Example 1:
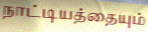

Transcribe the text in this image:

நாட்டியத்தையும்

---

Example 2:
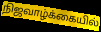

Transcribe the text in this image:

நிஜவாழ்க்கையில்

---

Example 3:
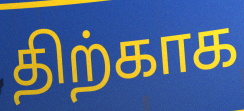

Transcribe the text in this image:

திற்காக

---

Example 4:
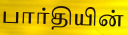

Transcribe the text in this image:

பார்தியின்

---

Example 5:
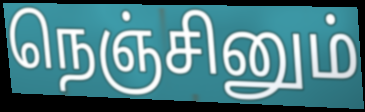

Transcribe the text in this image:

நெஞ்சினும்